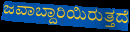
ಜವಾಬ್ದಾರಿಯಿರುತ್ತದೆ